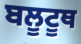
ਬਲੂਟੂਥ